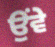
ਉੰਵੇ